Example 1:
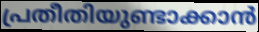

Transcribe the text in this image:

പ്രതീതിയുണ്ടാക്കാൻ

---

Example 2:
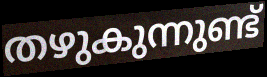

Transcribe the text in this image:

തഴുകുന്നുണ്ട്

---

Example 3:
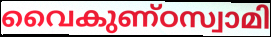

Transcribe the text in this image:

വൈകുണ്ഠസ്വാമി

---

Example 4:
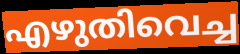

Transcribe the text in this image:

എഴുതിവെച്ച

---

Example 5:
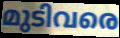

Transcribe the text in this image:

മുടിവരെ